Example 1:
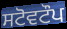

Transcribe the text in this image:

ਸਟੋਵਟੌਪ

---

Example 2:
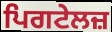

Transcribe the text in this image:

ਪਿਗਟੇਲਜ਼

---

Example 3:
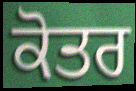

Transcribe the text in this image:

ਕੋਤਰ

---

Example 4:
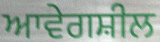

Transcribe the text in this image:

ਆਵੇਗਸ਼ੀਲ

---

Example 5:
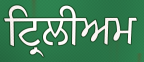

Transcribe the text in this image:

ਟ੍ਰਿਲੀਅਮ